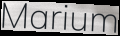
Marium